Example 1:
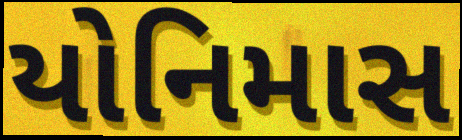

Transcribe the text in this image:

યોનિમાસ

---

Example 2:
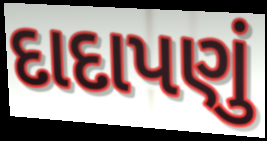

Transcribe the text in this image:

દાદાપણું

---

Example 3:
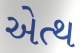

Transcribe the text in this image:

એત્થ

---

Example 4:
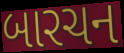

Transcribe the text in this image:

બારચન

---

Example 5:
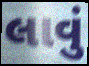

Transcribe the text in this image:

લાવું